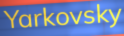
Yarkovsky